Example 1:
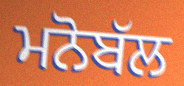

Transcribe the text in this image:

ਮਨੋਬੱਲ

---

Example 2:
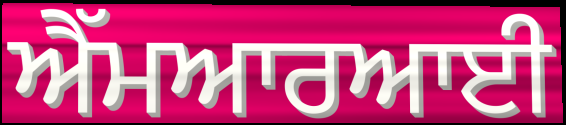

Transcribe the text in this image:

ਐੱਮਆਰਆਈ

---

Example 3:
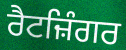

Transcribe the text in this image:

ਰੈਟਜ਼ਿੰਗਰ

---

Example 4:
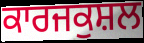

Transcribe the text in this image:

ਕਾਰਜਕੁਸ਼ਲ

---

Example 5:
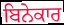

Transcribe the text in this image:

ਬਿਨੇਕਾਰ